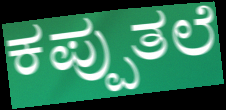
ಕಪ್ಪುತಲೆ